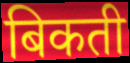
बिकती